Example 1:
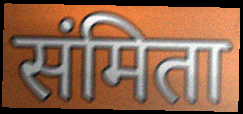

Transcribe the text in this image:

संमिता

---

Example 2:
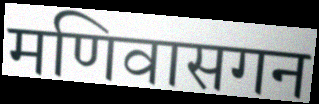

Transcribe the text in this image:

मणिवासगन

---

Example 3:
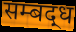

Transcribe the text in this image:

सम्बद्ध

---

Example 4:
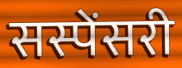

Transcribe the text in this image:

सस्पेंसरी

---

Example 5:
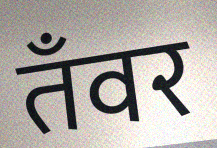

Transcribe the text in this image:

तँवर